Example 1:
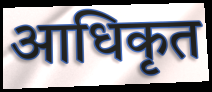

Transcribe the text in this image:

आधिकृत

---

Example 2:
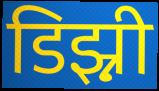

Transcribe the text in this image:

डिझ्नी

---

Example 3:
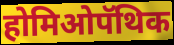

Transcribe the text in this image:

होमिओपॅथिक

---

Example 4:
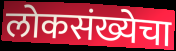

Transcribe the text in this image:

लोकसंख्येचा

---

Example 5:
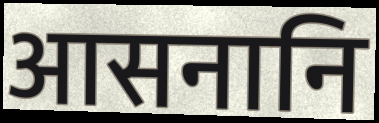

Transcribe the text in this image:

आसनानि